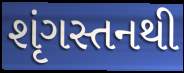
શૃંગસ્તનથી